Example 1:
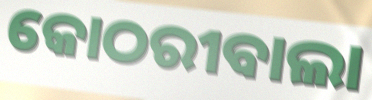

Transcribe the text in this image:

କୋଠରୀବାଲା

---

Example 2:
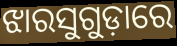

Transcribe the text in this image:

ଝାରସୁଗୁଡ଼ାରେ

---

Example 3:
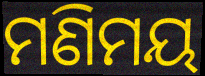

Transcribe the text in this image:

ମଣିମୟ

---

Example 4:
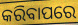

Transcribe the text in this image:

କରିବାପରେ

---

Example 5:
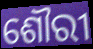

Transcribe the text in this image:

ଶୌରୀ